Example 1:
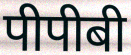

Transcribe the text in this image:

पीपीबी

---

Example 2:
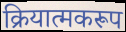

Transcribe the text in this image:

क्रियात्मकरूप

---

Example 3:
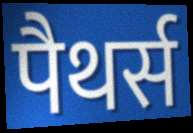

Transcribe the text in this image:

पैथर्स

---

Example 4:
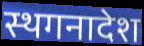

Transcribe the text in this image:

स्थगनादेश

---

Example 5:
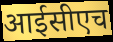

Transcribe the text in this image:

आईसीएच